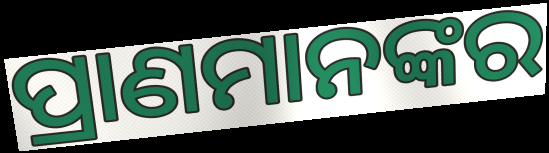
ପ୍ରାଣମାନଙ୍କର